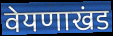
वेयणाखंड